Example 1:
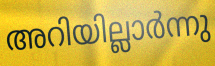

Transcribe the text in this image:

അറിയില്ലാർന്നു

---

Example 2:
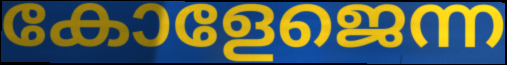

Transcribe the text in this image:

കോളേജെന്ന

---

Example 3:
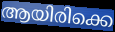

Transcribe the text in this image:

ആയിരിക്കെ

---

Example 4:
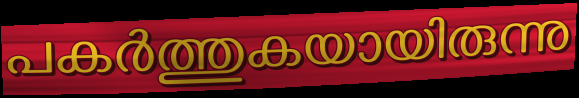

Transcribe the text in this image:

പകർത്തുകയായിരുന്നു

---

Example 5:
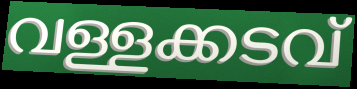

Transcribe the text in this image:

വള്ളക്കടവ്